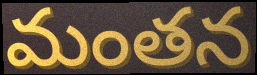
మంతన